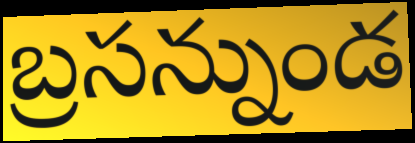
బ్రసన్నుండ